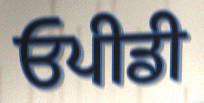
ਓਪੀਡੀ